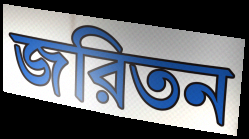
জরিতন